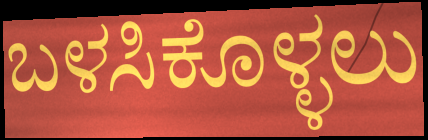
ಬಳಸಿಕೊಳ್ಳಲು